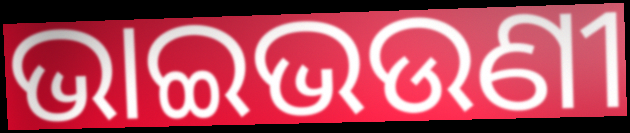
ଭାଇଭଉଣୀ